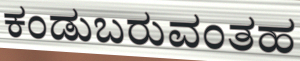
ಕಂಡುಬರುವಂತಹ